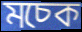
মচ্কে